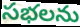
సభలను